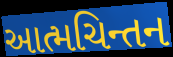
આત્મચિન્તન